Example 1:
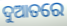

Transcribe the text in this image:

ଦୁଆତରେ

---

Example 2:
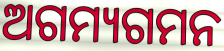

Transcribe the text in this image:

ଅଗମ୍ୟଗମନ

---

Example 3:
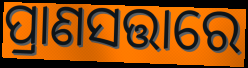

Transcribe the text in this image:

ପ୍ରାଣସତ୍ତାରେ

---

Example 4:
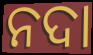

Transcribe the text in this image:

ନଦା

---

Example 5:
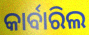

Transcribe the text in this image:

କାର୍ବାରିଲ